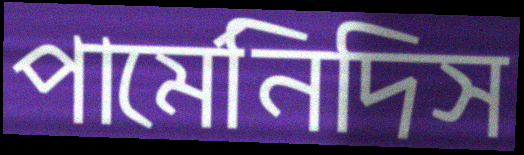
পার্মেনিদিস